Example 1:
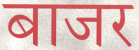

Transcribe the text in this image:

बाजर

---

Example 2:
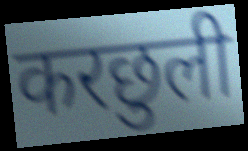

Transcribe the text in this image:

करछुली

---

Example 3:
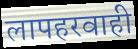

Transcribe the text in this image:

लापहरवाही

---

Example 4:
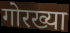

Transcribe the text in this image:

गोरख्या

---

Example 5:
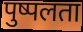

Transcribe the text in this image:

पुष्पलता